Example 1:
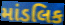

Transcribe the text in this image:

માંડલિક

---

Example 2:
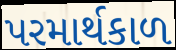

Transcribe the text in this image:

પરમાર્થકાળ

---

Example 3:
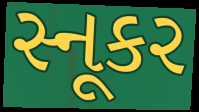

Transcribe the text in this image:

સ્નૂકર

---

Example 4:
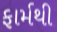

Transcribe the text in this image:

ફાર્મથી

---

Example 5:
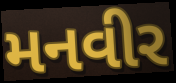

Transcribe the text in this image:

મનવીર